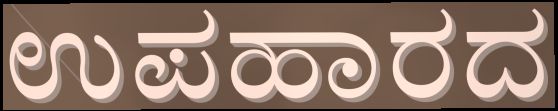
ಉಪಹಾರದ